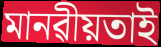
মানৱীয়তাই